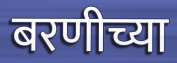
बरणीच्या